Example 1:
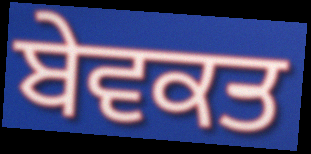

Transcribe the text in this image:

ਬੇਵਕਤ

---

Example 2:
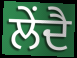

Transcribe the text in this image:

ਲੇਂਦੈ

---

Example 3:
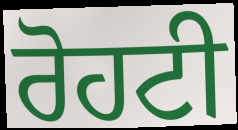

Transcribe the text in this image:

ਰੋਹਟੀ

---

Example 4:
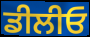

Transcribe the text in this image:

ਡੀਲੀਓ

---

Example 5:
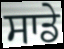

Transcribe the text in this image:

ਸਾਡੇ